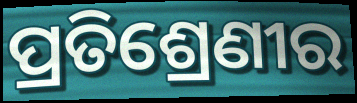
ପ୍ରତିଶ୍ରେଣୀର